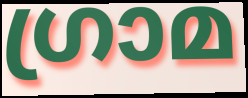
ഗ്രാമ